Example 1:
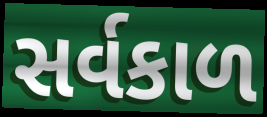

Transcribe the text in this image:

સર્વકાળ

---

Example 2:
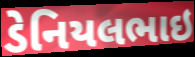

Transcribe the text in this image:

ડેનિયલભાઇ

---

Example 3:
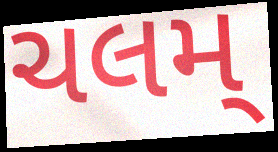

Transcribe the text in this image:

ચલમ્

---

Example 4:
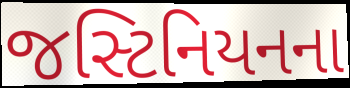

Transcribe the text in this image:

જસ્ટિનિયનના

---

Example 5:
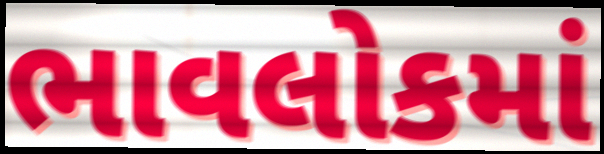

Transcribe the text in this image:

ભાવલોકમાં